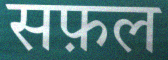
सफ़ल